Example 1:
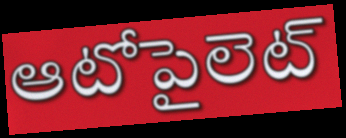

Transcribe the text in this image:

ఆటోపైలెట్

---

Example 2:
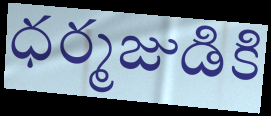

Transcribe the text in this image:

ధర్మజుడికి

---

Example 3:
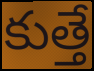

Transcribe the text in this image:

కుత్తే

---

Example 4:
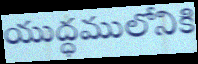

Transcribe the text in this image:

యుద్ధములోనికి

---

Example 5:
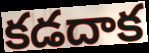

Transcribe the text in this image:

కడదాక